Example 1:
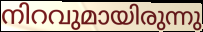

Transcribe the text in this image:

നിറവുമായിരുന്നു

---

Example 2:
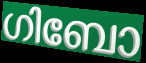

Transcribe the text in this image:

ഗിബോ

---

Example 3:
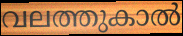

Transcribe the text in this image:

വലത്തുകാൽ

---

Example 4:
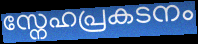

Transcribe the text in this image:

സ്നേഹപ്രകടനം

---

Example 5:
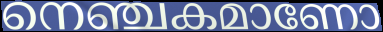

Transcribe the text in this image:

നെഞ്ചകമാണോ